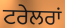
ਟਰੇਲਰਾਂ